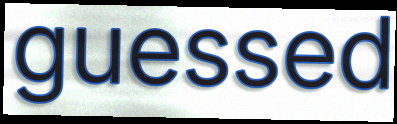
guessed